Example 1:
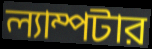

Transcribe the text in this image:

ল্যাম্পটার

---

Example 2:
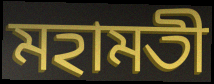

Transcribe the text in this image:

মহামতী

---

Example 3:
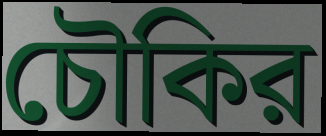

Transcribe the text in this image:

চৌকির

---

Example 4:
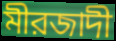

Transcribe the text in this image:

মীরজাদী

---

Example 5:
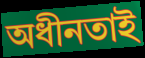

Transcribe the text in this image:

অধীনতাই